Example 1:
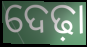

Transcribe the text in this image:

ଦେଢ଼ା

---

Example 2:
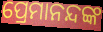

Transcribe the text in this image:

ପ୍ରେମାନନ୍ଦଙ୍କ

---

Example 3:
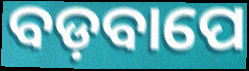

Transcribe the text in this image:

ବଡ଼ବାପେ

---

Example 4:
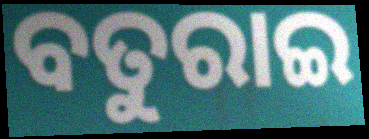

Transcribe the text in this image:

ବତୁରାଇ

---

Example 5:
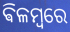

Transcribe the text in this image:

ଵିଳମ୍ବରେ